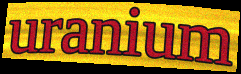
uranium